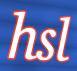
hsl